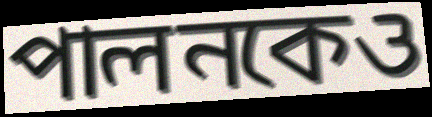
পালনকেও